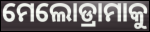
ମେଲୋଡ୍ରାମାକୁ